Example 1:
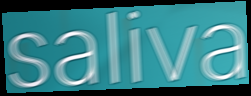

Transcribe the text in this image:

saliva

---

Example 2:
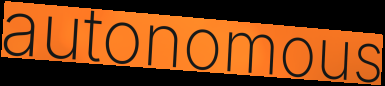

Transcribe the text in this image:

autonomous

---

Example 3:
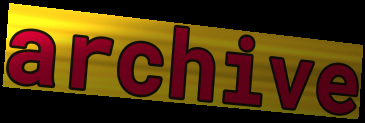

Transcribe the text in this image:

archive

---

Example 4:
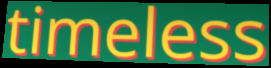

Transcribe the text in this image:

timeless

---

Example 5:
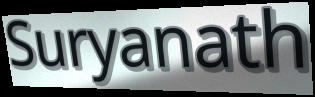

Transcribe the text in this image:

Suryanath